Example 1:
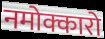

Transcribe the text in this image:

नमोक्कारो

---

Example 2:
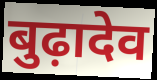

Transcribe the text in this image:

बुढ़ादेव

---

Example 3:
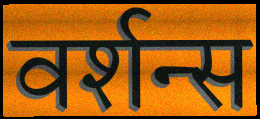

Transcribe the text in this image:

वर्शन्स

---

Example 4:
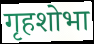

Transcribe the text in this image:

गृहशोभा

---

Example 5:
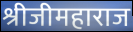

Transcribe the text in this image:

श्रीजीमहाराज